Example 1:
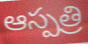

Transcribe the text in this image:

ఆస్పత్రి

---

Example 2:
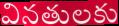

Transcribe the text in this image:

వినతులకు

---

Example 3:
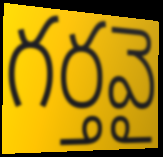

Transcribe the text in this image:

గర్తవై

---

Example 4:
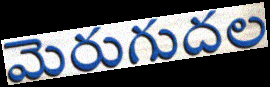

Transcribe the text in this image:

మెరుగుదల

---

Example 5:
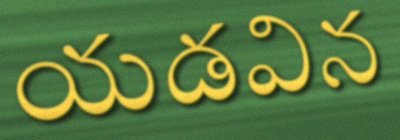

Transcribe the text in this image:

యడవిన